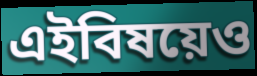
এইবিষয়েও